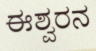
ಈಶ್ವರನ